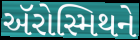
ઍરોસ્મિથને